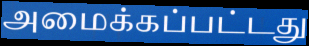
அமைக்கப்பட்டது